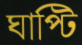
ঘাপ্টি